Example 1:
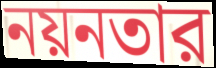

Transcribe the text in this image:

নয়নতার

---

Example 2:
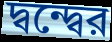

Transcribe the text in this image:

দ্বন্দ্বের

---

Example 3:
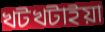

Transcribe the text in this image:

খটখটাইয়া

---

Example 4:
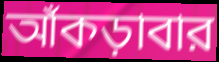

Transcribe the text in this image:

আঁকড়াবার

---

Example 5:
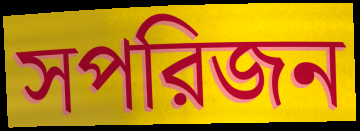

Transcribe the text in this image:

সপরিজন